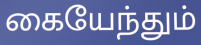
கையேந்தும்